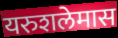
यरुशलेमास